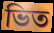
ভিত